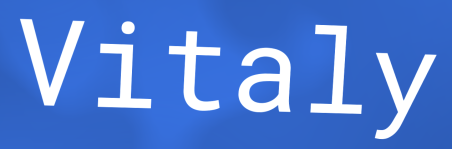
Vitaly